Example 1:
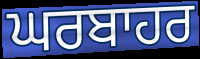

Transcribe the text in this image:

ਘਰਬਾਹਰ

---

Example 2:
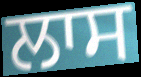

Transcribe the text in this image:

ਲਾਸ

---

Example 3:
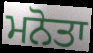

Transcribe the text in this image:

ਮਨੋਤਾ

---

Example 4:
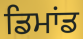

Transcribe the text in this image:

ਡਿਮਾਂਡ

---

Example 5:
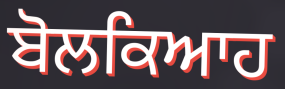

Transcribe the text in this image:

ਬੋਲਕਿਆਹ